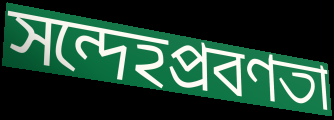
সন্দেহপ্রবণতা